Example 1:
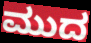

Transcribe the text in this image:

ಮುದ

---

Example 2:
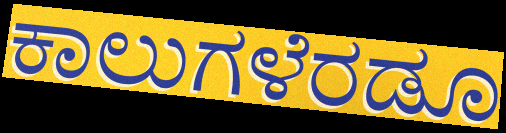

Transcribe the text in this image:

ಕಾಲುಗಳೆರಡೂ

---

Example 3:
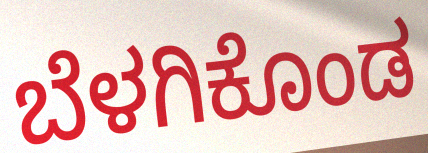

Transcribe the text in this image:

ಬೆಳಗಿಕೊಂಡ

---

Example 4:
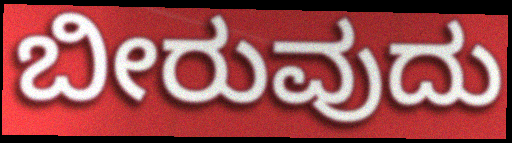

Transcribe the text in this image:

ಬೀರುವುದು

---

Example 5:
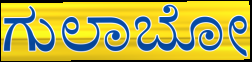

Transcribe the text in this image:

ಗುಲಾಬೋ